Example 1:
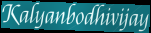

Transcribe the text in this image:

Kalyanbodhivijay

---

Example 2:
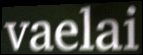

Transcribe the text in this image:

vaelai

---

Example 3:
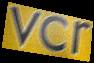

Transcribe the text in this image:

vcr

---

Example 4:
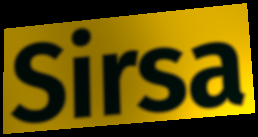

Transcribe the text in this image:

Sirsa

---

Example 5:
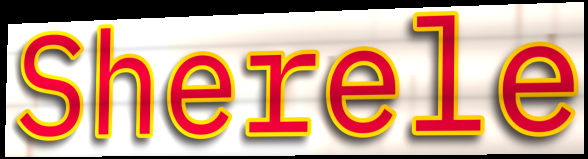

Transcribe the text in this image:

Sherele